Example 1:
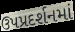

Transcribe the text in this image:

ઉપપ્રદર્શનમાં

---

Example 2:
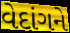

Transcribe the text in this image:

વેદાંગને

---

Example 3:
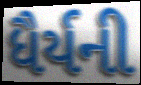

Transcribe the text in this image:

ધૈર્યની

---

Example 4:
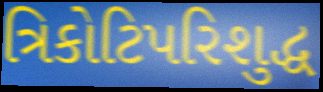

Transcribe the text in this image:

ત્રિકોટિપરિશુદ્ધ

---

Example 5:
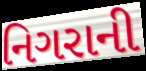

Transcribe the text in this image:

નિગરાની